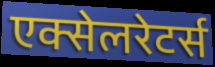
एक्सेलरेटर्स